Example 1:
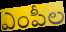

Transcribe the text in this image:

ఎంపీల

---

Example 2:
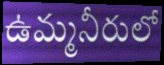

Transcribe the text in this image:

ఉమ్మనీరులో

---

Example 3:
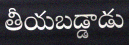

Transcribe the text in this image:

తీయబడ్డాడు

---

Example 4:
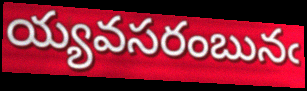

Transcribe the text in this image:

య్యవసరంబునఁ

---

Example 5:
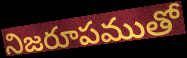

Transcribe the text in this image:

నిజరూపముతో